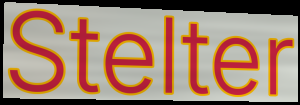
Stelter